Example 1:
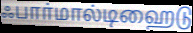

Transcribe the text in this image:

ஃபார்மால்டிஹைடு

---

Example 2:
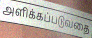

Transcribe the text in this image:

அளிக்கப்படுவதை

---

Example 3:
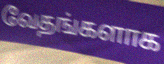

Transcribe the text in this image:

வேதங்களாக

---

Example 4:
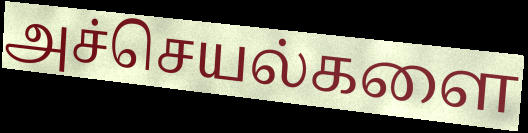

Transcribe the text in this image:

அச்செயல்களை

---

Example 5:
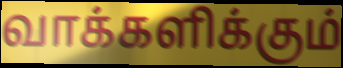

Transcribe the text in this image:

வாக்களிக்கும்